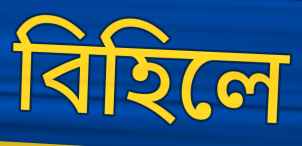
বিহিলে